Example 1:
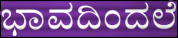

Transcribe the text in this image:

ಭಾವದಿಂದಲೆ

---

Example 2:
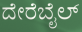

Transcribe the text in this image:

ದೇರೆಬೈಲ್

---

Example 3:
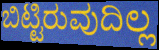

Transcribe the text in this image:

ಬಿಟ್ಟಿರುವುದಿಲ್ಲ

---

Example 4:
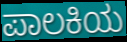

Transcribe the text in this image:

ಪಾಲಕಿಯ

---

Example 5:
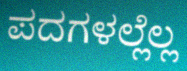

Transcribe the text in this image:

ಪದಗಳಲ್ಲೆಲ್ಲ